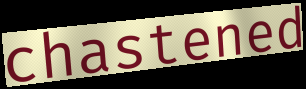
chastened